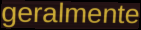
geralmente